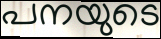
പനയുടെ